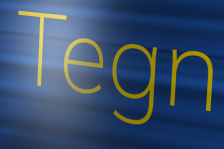
Tegn